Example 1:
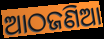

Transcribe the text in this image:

ଆଠଜଣିଆ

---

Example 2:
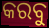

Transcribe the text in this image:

କରବୁ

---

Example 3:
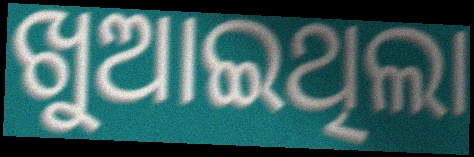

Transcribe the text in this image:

ଖୁଆଇଥିଲା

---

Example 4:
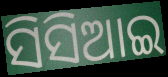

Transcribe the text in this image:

ସିସିଆଇ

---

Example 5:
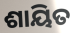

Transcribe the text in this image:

ଶାୟିତ